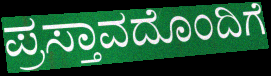
ಪ್ರಸ್ತಾವದೊಂದಿಗೆ